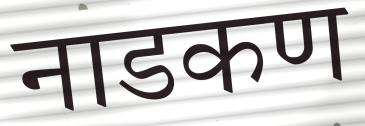
नाडकण